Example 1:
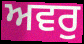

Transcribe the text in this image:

ਅਵਰੁ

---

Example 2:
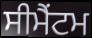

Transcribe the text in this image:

ਸੀਮੈਂਟਮ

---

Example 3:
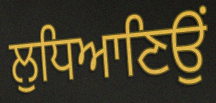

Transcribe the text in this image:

ਲੁਧਿਆਣਿਉਂ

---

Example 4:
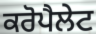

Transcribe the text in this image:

ਕਰੋਪੈਲੇਟ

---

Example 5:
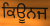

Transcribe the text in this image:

ਕਿਊਨਜ